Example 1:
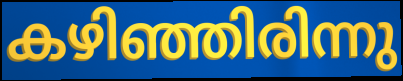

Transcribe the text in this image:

കഴിഞ്ഞിരിന്നു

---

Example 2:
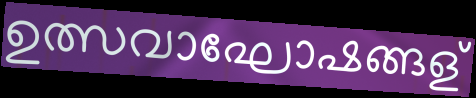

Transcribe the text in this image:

ഉത്സവാഘോഷങ്ങള്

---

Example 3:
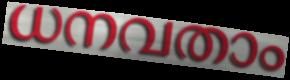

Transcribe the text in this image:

ധനവതാം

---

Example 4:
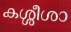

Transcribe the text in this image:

കശ്ശീശാ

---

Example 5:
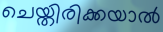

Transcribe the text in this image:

ചെയ്തിരിക്കയാൽ